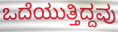
ಒದೆಯುತ್ತಿದ್ದವು